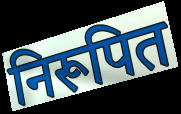
निरूपित